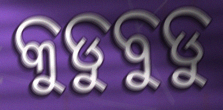
କୁଡୁବୁଡୁ